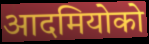
आदमियोको